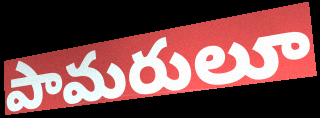
పామరులూ